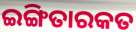
ଇଙ୍ଗିତାରକତ